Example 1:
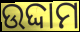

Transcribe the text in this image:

ଉଦ୍ଦାମ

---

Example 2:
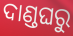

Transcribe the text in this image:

ଦାଣ୍ଡଘରୁ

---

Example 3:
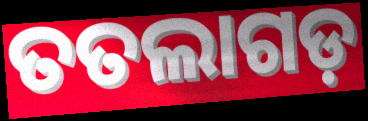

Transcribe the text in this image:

ତତଲାଗଡ଼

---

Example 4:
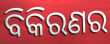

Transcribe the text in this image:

ବିକିରଣର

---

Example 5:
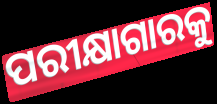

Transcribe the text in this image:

ପରୀକ୍ଷାଗାରକୁ